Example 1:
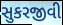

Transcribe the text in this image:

સુકરજીવી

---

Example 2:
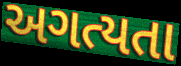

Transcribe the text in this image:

અગત્યતા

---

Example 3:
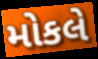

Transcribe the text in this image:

મોકલે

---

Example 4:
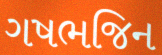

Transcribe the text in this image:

ગષભજિન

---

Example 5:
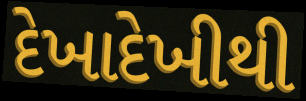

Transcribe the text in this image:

દેખાદેખીથી